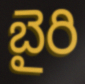
బైరి